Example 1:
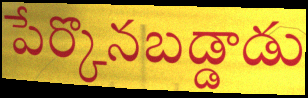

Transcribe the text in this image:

పేర్కొనబడ్డాడు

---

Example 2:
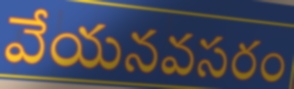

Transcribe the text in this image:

వేయనవసరం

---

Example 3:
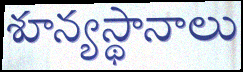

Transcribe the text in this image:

శూన్యస్థానాలు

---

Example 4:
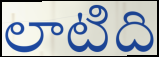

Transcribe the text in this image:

లాటిది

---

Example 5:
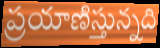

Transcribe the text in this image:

ప్రయాణిస్తున్నది